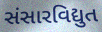
સંસારવિદ્યુત